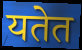
यतेत